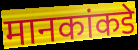
मानकांकडे